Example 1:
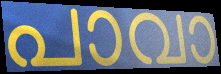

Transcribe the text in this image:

പാവാ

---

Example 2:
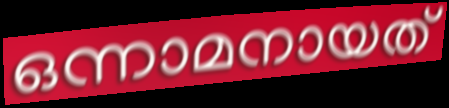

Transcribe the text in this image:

ഒന്നാമനായത്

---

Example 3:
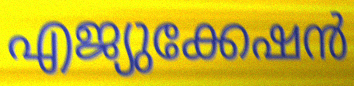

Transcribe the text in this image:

എജ്യുക്കേഷൻ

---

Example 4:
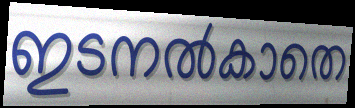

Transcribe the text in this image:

ഇടനൽകാതെ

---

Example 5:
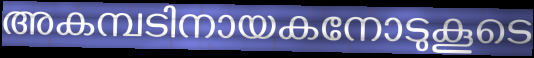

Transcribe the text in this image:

അകമ്പടിനായകനോടുകൂടെ